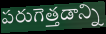
పరుగెత్తడాన్ని